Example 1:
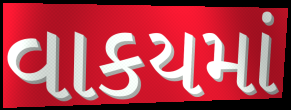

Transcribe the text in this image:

વાકયમાં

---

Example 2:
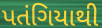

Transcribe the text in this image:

પતંગિયાથી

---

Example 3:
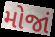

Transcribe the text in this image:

મોજાં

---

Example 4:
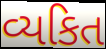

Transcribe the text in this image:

વ્યકિત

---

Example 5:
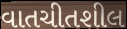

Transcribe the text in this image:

વાતચીતશીલ